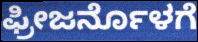
ಫ್ರೀಜರ್ನೊಳಗೆ